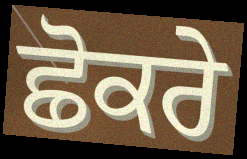
ਛੋਕਰੇ